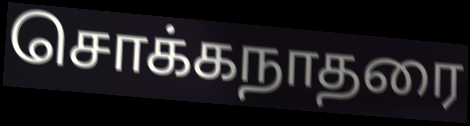
சொக்கநாதரை